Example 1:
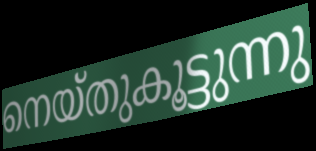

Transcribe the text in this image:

നെയ്തുകൂട്ടുന്നു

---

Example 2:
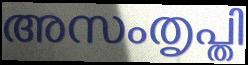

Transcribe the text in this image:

അസംതൃപ്തി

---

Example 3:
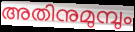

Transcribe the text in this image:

അതിനുമുമ്പും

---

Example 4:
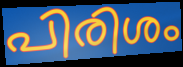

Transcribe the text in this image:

പിരിശം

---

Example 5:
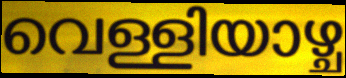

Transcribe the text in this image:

വെള്ളിയാഴ്ച